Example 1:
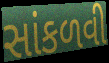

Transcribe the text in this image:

સાંકળવી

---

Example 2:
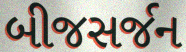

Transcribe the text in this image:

બીજસર્જન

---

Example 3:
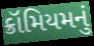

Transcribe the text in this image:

ક્રૉમિયમનું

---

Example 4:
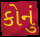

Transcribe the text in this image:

કોનું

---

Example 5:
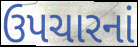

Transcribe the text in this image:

ઉપચારનાં